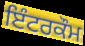
ਇੰਟਰਕੌਮ